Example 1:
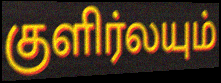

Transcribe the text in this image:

குளிர்லயும்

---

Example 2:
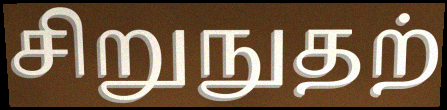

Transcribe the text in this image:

சிறுநுதற்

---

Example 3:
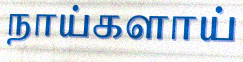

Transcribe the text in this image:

நாய்களாய்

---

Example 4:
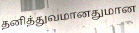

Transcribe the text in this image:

தனித்துவமானதுமான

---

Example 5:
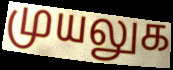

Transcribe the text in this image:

முயலுக